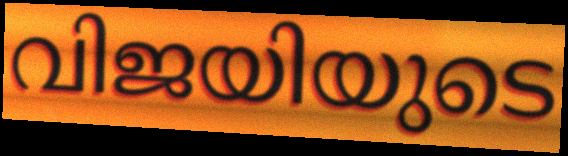
വിജയിയുടെ